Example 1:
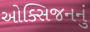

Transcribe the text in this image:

ઓક્સિજનનું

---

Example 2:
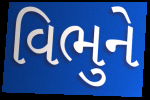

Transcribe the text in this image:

વિભુને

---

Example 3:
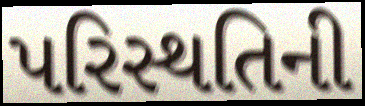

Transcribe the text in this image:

પરિસ્થતિની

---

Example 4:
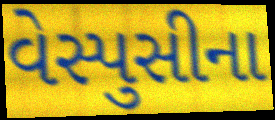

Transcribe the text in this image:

વેસ્પુસીના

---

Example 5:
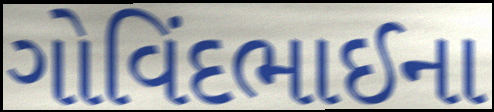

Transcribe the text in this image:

ગોવિંદભાઈના